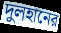
দুলহানের